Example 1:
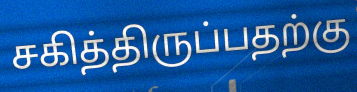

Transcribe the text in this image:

சகித்திருப்பதற்கு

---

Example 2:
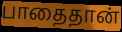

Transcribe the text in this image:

பாதைதான்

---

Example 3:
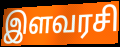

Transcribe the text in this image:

இளவரசி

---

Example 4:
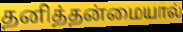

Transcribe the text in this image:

தனித்தன்மையால்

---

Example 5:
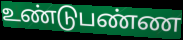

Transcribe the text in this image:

உண்டுபண்ண